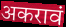
अकरावं